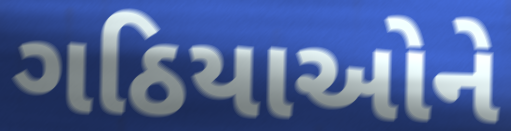
ગઠિયાઓને